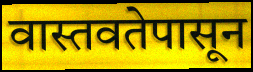
वास्तवतेपासून